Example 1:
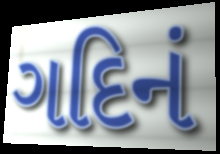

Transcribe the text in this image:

ગદિનં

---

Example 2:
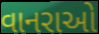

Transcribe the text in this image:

વાનરાઓ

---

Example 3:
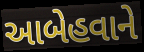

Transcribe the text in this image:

આબેહવાને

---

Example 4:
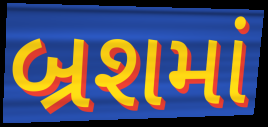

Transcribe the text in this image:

બ્રશમાં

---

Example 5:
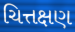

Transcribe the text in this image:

ચિત્તક્ષણ